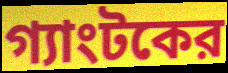
গ্যাংটকের